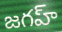
జగహ్